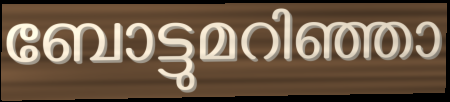
ബോട്ടുമറിഞ്ഞാ